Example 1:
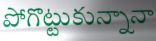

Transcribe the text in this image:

పోగొట్టుకున్నానా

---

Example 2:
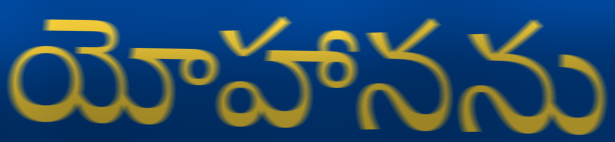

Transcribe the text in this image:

యోహానను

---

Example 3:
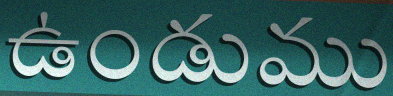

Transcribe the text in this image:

ఉండుము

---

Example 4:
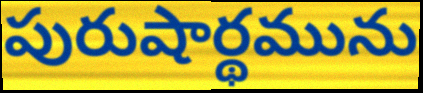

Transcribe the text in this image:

పురుషార్థమును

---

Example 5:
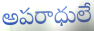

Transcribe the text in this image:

అపరాధులే